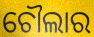
ଚୌଲାର